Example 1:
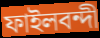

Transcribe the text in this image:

ফাইলবন্দী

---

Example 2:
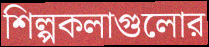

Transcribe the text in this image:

শিল্পকলাগুলোর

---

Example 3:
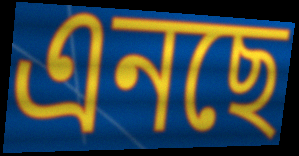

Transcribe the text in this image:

এনছে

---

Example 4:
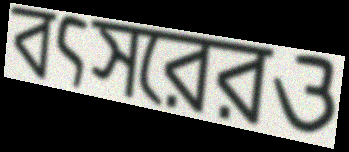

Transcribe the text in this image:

বৎসরেরও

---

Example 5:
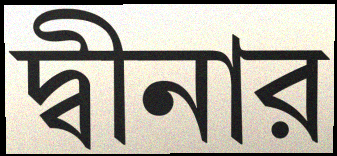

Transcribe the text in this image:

দ্বীনার